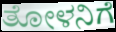
ತೋಳನಿಗೆ